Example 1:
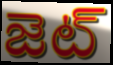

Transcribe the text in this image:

జెట్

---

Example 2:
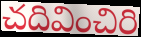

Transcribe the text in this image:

చదివించిరి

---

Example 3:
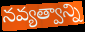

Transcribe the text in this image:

నవ్యత్వాన్ని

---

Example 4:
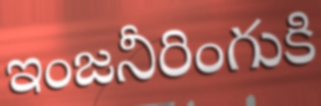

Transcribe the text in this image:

ఇంజనీరింగుకి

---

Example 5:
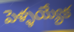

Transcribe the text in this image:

పెళ్ళయ్యేక